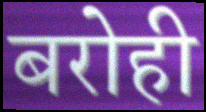
बरोही